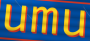
umu